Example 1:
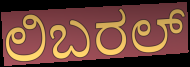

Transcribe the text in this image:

ಲಿಬರಲ್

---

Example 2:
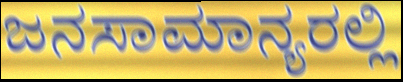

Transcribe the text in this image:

ಜನಸಾಮಾನ್ಯರಲ್ಲಿ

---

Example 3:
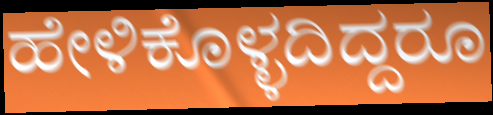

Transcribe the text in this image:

ಹೇಳಿಕೊಳ್ಳದಿದ್ದರೂ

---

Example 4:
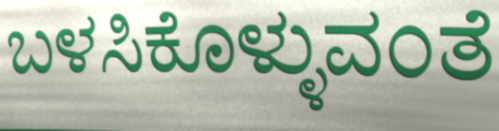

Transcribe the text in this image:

ಬಳಸಿಕೊಳ್ಳುವಂತೆ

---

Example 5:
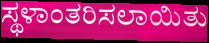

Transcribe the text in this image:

ಸ್ಥಳಾಂತರಿಸಲಾಯಿತು